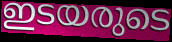
ഇടയരുടെ